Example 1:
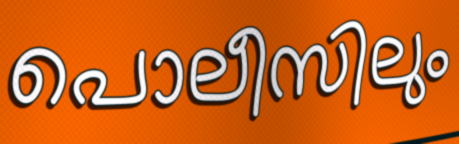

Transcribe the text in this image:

പൊലീസിലും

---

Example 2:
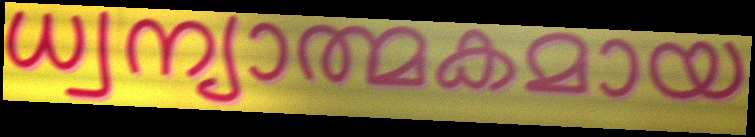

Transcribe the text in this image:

ധ്വന്യാത്മകമായ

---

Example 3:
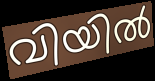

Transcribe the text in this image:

വിയിൽ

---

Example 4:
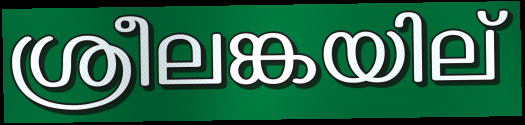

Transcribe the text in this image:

ശ്രീലങ്കയില്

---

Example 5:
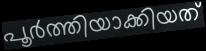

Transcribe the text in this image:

പൂർത്തിയാക്കിയത്